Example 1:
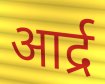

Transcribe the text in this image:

आर्द्र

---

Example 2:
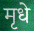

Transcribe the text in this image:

मृधे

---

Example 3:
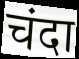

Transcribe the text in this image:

चंदा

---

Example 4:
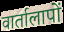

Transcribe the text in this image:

वार्तालापों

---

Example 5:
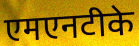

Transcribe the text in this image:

एमएनटीके